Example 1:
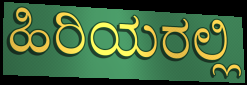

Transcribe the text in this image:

ಹಿರಿಯರಲ್ಲಿ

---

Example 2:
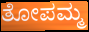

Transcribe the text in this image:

ತೋಪಮ್ಮ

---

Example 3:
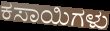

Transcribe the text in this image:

ಕಸಾಯಿಗಳು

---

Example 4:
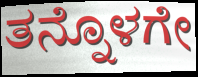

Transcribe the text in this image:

ತನ್ನೊಳಗೇ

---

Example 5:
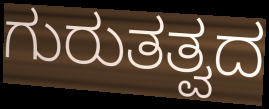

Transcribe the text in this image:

ಗುರುತತ್ವದ